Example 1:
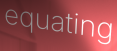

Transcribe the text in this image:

equating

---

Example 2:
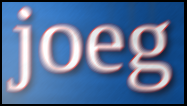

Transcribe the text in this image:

joeg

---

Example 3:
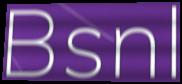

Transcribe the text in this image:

Bsnl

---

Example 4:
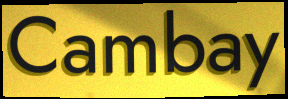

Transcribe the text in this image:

Cambay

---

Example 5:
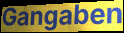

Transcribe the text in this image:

Gangaben